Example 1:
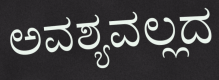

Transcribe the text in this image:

ಅವಶ್ಯವಲ್ಲದ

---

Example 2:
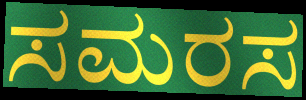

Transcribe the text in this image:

ಸಮರಸ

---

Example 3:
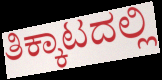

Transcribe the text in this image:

ತಿಕ್ಕಾಟದಲ್ಲಿ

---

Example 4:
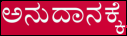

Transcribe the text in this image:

ಅನುದಾನಕ್ಕೆ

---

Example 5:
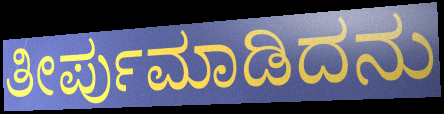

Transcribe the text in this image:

ತೀರ್ಪುಮಾಡಿದನು